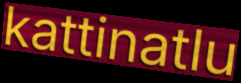
kattinatlu